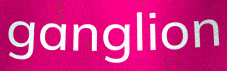
ganglion